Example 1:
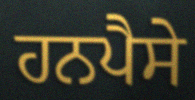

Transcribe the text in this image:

ਹਨਪੈਸੇ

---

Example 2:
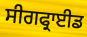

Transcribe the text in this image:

ਸੀਗਫ੍ਰਾਈਡ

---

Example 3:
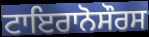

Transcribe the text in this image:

ਟਾਇਰਾਨੋਸੌਰਸ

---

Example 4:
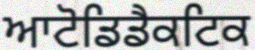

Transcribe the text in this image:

ਆਟੋਡਿਡੈਕਟਿਕ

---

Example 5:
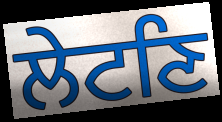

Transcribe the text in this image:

ਲੇਟਣਿ